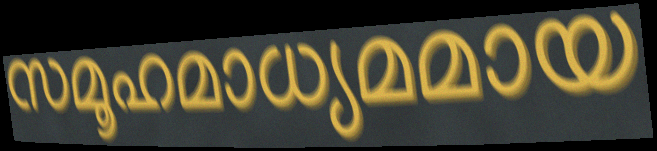
സമൂഹമാധ്യമമായ